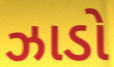
ઝાડો